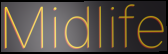
Midlife